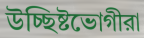
উচ্ছিষ্টভোগীরা